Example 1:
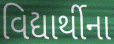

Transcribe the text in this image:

વિદ્યાર્થીના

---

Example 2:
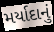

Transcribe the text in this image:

મર્યાદાનું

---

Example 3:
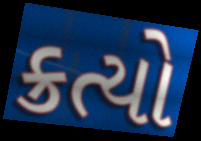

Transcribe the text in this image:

ક્રત્યો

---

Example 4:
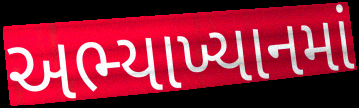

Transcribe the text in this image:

અભ્યાખ્યાનમાં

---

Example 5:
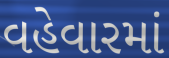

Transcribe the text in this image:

વહેવારમાં